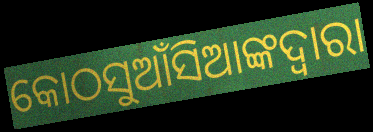
କୋଠସୁଆଁସିଆଙ୍କଦ୍ବାରା